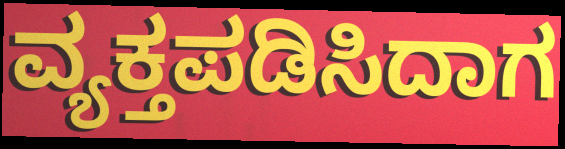
ವ್ಯಕ್ತಪಡಿಸಿದಾಗ